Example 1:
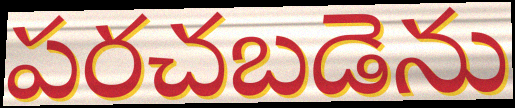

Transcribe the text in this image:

పరచబడెను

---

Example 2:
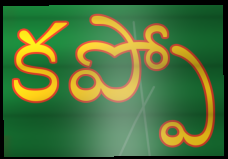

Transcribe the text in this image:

కప్పో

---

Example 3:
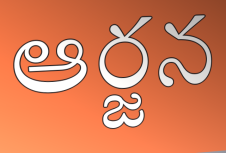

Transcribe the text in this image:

ఆర్జన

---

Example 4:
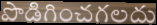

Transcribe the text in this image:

పొడిగించగలదు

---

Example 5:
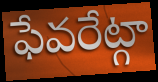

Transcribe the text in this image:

ఫేవరేట్గా